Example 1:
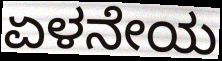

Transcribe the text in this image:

ಏಳನೇಯ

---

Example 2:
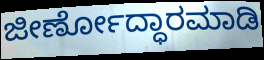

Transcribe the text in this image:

ಜೀರ್ಣೋದ್ಧಾರಮಾಡಿ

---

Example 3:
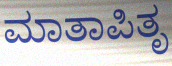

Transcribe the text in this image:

ಮಾತಾಪಿತೃ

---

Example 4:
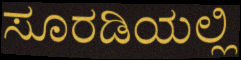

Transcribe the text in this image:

ಸೂರಡಿಯಲ್ಲಿ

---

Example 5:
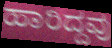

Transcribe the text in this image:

ಹಾರಿದ್ದವು